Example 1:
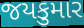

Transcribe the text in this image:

જયકુમાર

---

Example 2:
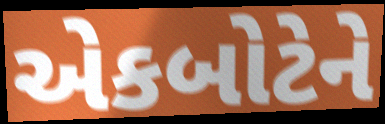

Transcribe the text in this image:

એકબોટેને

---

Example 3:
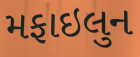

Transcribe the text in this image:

મફાઇલુન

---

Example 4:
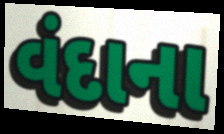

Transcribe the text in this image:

વંદાના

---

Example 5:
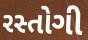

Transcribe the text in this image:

રસ્તોગી